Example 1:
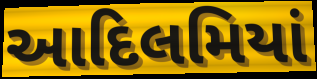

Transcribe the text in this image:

આદિલમિયાં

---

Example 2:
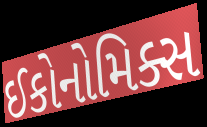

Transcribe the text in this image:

ઈકોનોમિક્સ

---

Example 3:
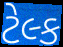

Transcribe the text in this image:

ટેલ્ક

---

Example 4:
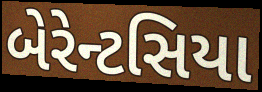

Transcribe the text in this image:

બેરેન્ટસિયા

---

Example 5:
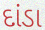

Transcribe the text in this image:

દાંડા